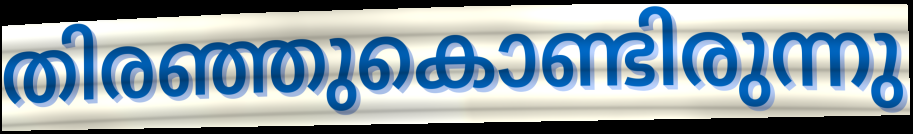
തിരഞ്ഞുകൊണ്ടിരുന്നു